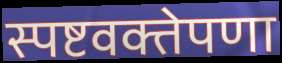
स्पष्टवक्तेपणा